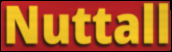
Nuttall